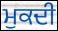
ਮੁਕਦੀ